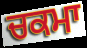
ਚਕਮਾ